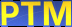
PTM